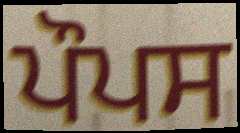
ਪੌਪਸ